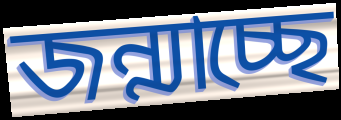
জন্মাচ্ছে